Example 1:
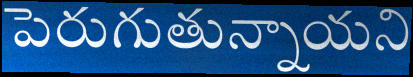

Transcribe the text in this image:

పెరుగుతున్నాయని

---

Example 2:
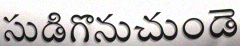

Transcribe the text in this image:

సుడిగొనుచుండె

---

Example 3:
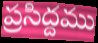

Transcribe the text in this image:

ప్రసిద్దము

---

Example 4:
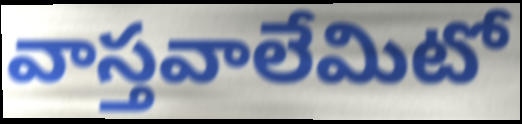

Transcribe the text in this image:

వాస్తవాలేమిటో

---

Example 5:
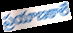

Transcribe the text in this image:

ప్రయాణకాలే